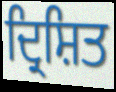
ਦ੍ਰਿਸ਼ਿਤ